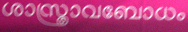
ശാസ്ത്രാവബോധം